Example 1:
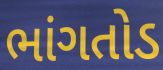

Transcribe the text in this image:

ભાંગતોડ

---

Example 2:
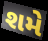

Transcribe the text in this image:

શમે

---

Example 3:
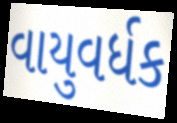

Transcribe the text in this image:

વાયુવર્ધક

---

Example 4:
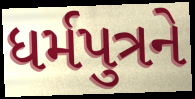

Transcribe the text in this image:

ધર્મપુત્રને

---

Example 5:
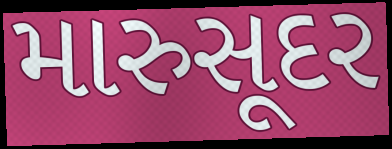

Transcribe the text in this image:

મારુસૂદર